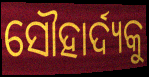
ସୌହାର୍ଦ୍ୟକୁ